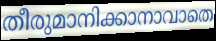
തീരുമാനിക്കാനാവാതെ